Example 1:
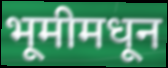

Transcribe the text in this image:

भूमीमधून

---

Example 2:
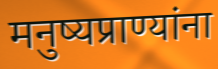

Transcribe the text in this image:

मनुष्यप्राण्यांना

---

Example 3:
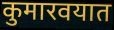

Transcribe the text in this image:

कुमारवयात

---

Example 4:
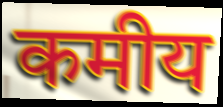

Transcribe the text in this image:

कमीय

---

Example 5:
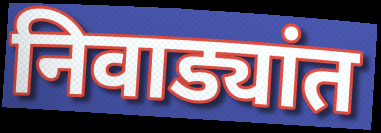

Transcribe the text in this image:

निवाड्यांत